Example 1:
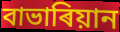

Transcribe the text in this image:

বাভাৰিয়ান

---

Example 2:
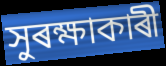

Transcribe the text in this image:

সুৰক্ষাকাৰী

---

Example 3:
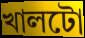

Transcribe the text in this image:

খালটো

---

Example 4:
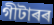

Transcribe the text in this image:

গীটাৰৰ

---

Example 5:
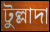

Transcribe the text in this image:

টুল্লাদা